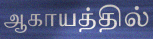
ஆகாயத்தில்